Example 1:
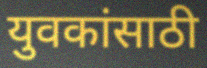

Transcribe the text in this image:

युवकांसाठी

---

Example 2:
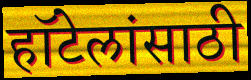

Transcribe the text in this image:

हॉटेलांसाठी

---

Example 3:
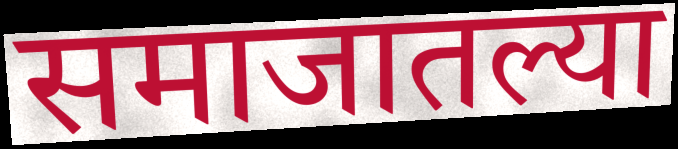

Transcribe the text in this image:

समाजातल्‍या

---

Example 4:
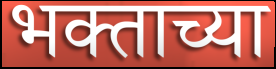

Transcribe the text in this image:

भक्ताच्या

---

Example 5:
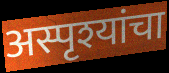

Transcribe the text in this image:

अस्पृश्यांचा